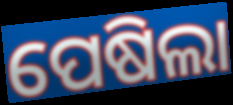
ପେଷିଲା